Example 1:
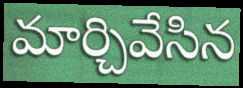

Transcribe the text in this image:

మార్చివేసిన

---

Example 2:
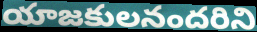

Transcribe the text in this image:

యాజకులనందరిని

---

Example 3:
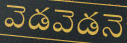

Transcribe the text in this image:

వెడవెడనె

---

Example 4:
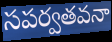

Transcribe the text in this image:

సపర్వతవనా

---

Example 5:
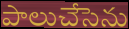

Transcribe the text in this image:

పాలుచేసెను